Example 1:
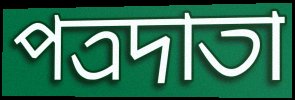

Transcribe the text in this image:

পত্রদাতা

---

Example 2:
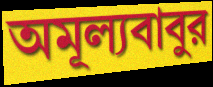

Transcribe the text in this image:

অমূল্যবাবুর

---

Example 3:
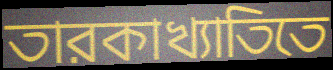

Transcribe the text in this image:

তারকাখ্যাতিতে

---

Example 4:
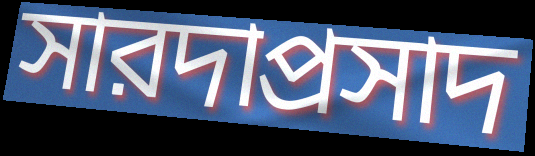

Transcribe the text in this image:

সারদাপ্রসাদ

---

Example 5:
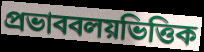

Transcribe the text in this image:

প্রভাববলয়ভিত্তিক